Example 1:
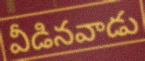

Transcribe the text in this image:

వీడినవాడు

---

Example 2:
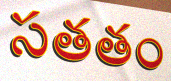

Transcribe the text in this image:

సతతం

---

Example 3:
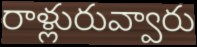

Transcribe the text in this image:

రాళ్లురువ్వారు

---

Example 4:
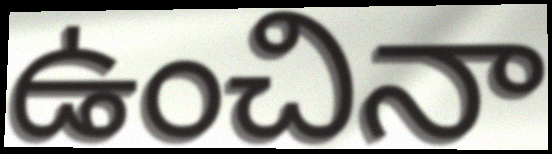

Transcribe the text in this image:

ఉంచినా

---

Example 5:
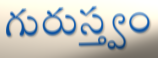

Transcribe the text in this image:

గురుస్త్వం